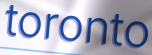
toronto